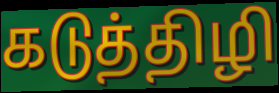
கடுத்திழி